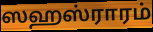
ஸஹஸ்ராரம்